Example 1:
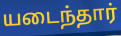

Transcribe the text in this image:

யடைந்தார்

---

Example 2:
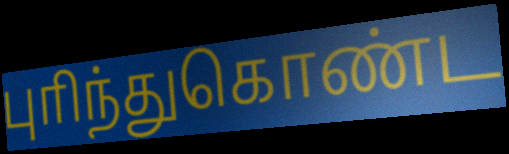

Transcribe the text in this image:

புரிந்துகொண்ட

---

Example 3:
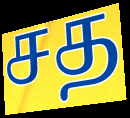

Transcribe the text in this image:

சத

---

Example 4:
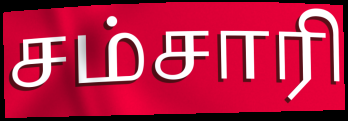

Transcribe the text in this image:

சம்சாரி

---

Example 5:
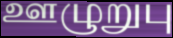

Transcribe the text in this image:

ஊழுறுபு